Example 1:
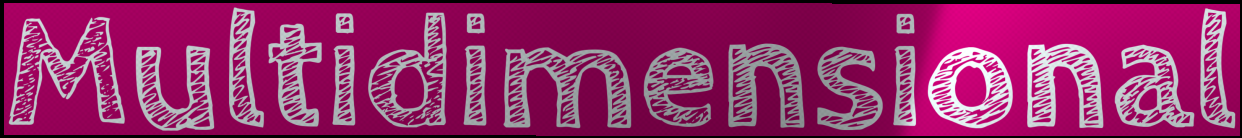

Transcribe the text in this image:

Multidimensional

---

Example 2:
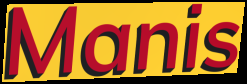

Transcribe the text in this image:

Manis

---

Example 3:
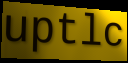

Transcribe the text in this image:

uptlc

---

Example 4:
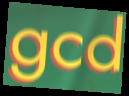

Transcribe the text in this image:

gcd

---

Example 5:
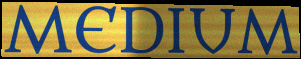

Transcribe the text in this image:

MEDIUM